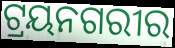
ଟ୍ରୟନଗରୀର